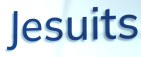
Jesuits